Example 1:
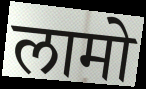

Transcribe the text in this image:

लामो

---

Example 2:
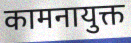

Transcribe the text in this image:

कामनायुक्त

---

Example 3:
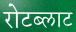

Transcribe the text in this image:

रोटब्लाट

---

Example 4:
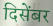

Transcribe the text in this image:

दिसेंबर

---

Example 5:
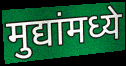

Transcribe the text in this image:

मुद्यांमध्ये